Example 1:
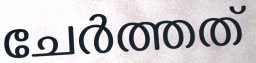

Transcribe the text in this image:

ചേർത്തത്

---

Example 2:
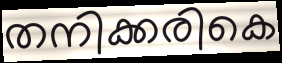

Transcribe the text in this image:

തനിക്കരികെ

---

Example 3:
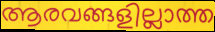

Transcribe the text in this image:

ആരവങ്ങളില്ലാത്ത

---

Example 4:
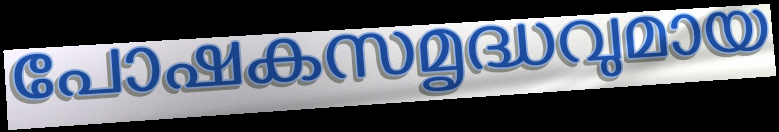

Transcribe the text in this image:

പോഷകസമൃദ്ധവുമായ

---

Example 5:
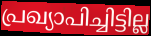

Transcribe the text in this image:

പ്രഖ്യാപിച്ചിട്ടില്ല